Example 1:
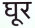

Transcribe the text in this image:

घूर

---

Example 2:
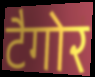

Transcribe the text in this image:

टैगोर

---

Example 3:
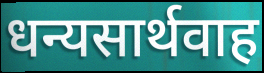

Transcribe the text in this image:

धन्यसार्थवाह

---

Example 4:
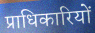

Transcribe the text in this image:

प्राधिकारियों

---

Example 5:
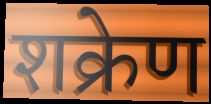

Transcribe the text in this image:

शक्रेण